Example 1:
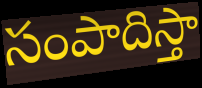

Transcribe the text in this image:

సంపాదిస్తా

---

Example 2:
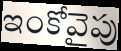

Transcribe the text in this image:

ఇంకోవైపు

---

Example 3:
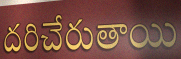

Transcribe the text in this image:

దరిచేరుతాయి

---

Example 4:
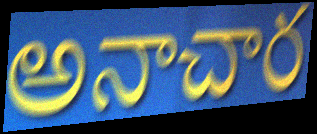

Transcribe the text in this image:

అనాచార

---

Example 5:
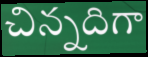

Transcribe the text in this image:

చిన్నదిగా